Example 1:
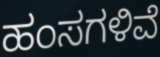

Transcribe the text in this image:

ಹಂಸಗಳಿವೆ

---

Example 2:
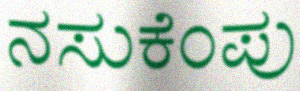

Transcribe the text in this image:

ನಸುಕೆಂಪು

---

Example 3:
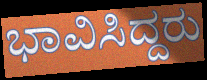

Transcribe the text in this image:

ಭಾವಿಸಿದ್ದರು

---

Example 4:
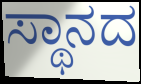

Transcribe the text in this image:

ಸ್ಥಾನದ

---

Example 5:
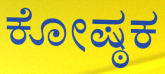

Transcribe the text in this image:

ಕೋಷ್ಠಕ